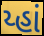
ય્હાં